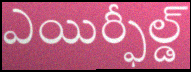
ఎయిర్ఫీల్డ్